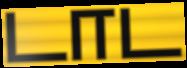
டாட